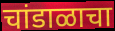
चांडाळाचा